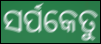
ସର୍ପକେତୁ